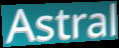
Astral